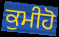
ਕੁਮੀਹੋ